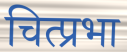
चित्प्रभा